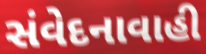
સંવેદનાવાહી